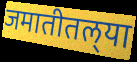
जमातीतल्या